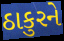
ઠાકુરને